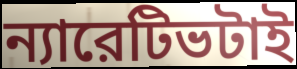
ন্যারেটিভটাই